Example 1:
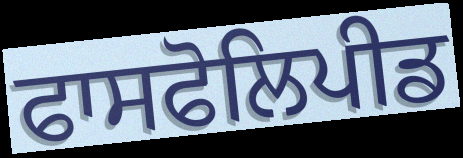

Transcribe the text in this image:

ਫਾਸਫੋਲਿਪੀਡ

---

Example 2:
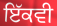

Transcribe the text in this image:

ਇੱਕਵੀ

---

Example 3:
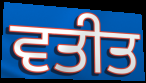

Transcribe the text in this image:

ਵਤੀਤ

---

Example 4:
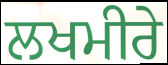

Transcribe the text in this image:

ਲਖਮੀਰੇ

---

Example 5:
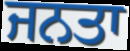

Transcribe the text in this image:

ਜਨਤਾ